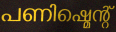
പണിഷ്മെന്റ്